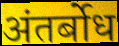
अंतर्बोध